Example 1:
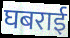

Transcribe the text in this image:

घबराई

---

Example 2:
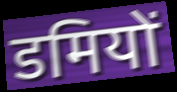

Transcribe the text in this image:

डमियों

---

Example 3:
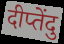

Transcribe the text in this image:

दीप्तेंदु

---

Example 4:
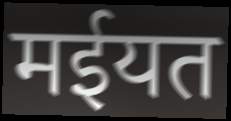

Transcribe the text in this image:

मईयत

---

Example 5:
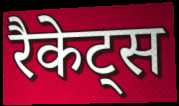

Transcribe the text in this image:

रैकेट्स